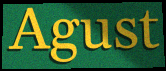
Agust